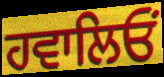
ਹਵਾਲਿਓਂ